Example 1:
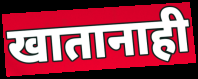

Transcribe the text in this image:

खातानाही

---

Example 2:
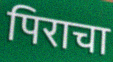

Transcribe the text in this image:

पिराचा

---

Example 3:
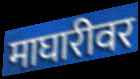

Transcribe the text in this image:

माघारीवर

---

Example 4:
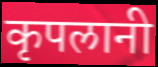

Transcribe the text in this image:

कृपलानी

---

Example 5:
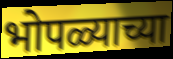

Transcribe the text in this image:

भोपळ्याच्या